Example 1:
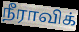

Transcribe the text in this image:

நீராவிக்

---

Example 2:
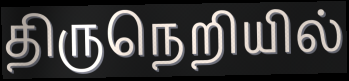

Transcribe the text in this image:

திருநெறியில்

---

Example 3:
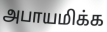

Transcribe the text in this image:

அபாயமிக்க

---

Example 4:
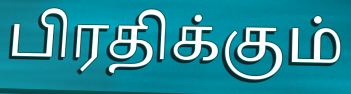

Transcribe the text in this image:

பிரதிக்கும்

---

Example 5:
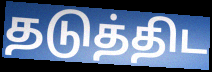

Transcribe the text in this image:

தடுத்திட